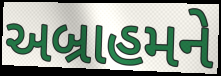
અબ્રાહમને